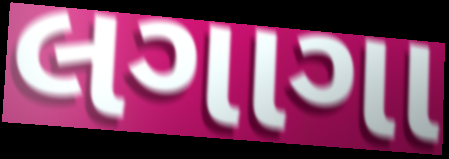
લગાગા